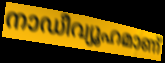
നാഡീവ്യൂഹമാണ്